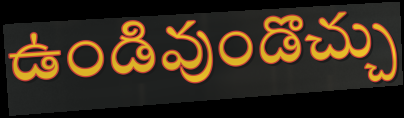
ఉండివుండొచ్చు